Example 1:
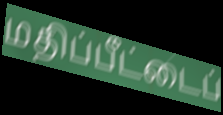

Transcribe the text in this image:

மதிப்பீட்டைப்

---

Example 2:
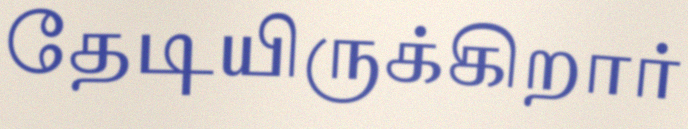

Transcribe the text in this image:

தேடியிருக்கிறார்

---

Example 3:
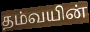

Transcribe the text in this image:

தம்வயின்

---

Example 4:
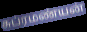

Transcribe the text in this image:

சுப்ரமண்யன்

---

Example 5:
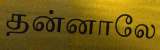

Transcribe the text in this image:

தன்னாலே